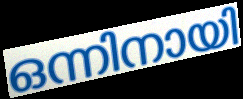
ഒന്നിനായി